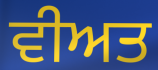
ਵੀਅਤ